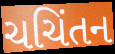
ચચિંતન